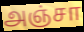
அஞ்சா